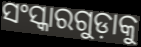
ସଂସ୍କାରଗୁଡ଼ାକୁ